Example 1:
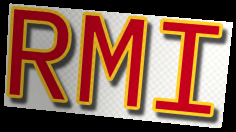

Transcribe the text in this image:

RMI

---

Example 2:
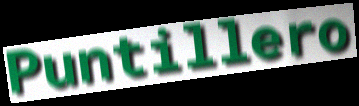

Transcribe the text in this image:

Puntillero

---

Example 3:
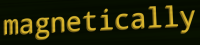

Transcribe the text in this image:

magnetically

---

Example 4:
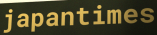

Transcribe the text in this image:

japantimes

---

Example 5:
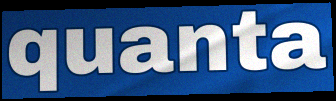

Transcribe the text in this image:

quanta